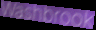
Washbrook